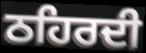
ਠਹਿਰਦੀ